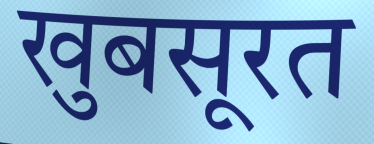
खुबसूरत